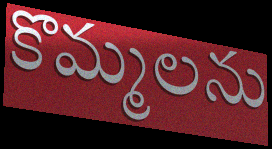
కొమ్మలను